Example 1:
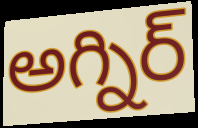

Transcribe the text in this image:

అగ్నిర్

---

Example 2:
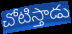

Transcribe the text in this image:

చోటిస్తాడు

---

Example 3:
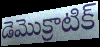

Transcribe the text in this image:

డెమొక్రాటిక్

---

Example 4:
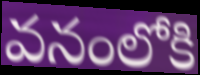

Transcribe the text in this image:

వనంలోకి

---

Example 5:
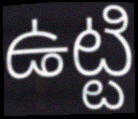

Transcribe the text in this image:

ఉట్టి